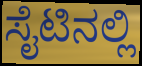
ಸೈಟಿನಲ್ಲಿ